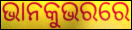
ଭାନକୁଭରରେ